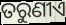
ତରୁଣୀଏ